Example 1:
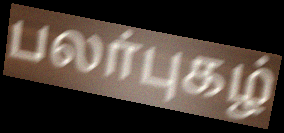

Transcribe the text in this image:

பலர்புகழ்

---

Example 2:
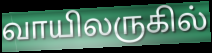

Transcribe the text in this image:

வாயிலருகில்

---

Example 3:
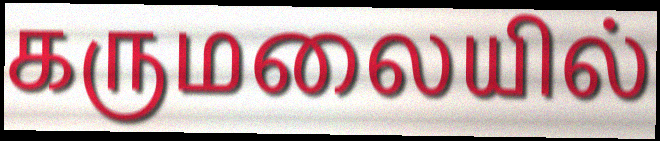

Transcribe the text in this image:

கருமலையில்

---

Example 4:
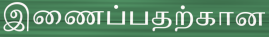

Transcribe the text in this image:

இணைப்பதற்கான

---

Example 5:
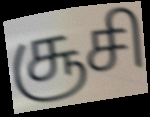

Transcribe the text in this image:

சூசி